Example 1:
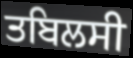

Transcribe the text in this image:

ਤਬਿਲਸੀ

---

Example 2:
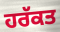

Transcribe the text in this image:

ਹਰੱਕਤ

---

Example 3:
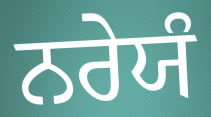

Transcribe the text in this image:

ਨਰੇਯੰ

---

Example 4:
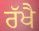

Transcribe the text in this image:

ਰੱਖੈ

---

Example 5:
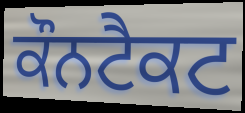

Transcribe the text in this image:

ਕੌਨਟੈਕਟ